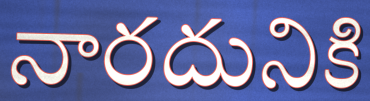
నారదునికి